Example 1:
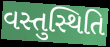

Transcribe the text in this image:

વસ્તુસ્થિતિ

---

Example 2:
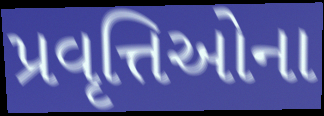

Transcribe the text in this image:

પ્રવૃત્તિઓના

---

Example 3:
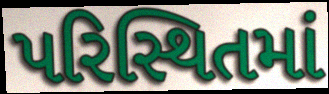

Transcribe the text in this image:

પરિસ્થિતમાં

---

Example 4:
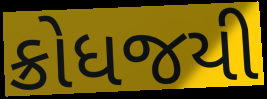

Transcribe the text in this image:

ક્રોધજયી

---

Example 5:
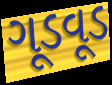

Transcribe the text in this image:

ગૂડવૂડ